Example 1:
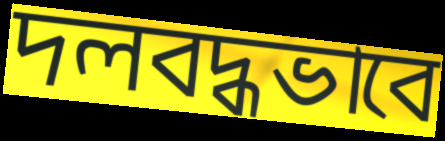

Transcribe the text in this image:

দলবদ্ধভাবে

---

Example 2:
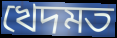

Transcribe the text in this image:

খেদমত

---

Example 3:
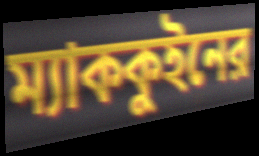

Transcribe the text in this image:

ম্যাককুইনের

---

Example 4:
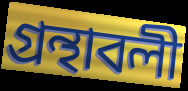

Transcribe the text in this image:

গ্রন্থাবলী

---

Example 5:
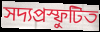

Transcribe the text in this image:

সদ্যপ্রস্ফুটিত